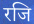
रजि